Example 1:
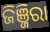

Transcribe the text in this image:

ଜିଞ୍ଜିରା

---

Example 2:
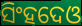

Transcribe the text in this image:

ସିଂହଦେଓ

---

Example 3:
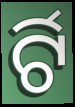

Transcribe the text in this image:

ର୍ଟି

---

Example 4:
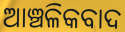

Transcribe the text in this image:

ଆଞ୍ଚଳିକବାଦ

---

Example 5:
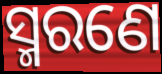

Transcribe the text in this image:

ସ୍ମରଣେ